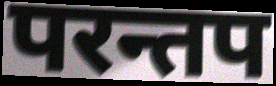
परन्तप